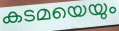
കടമയെയും